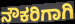
ನೌಕರಿಗಾಗಿ